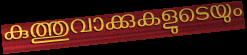
കുത്തുവാക്കുകളുടെയും